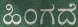
ಹಿಂಗದೆ